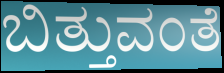
ಬಿತ್ತುವಂತೆ